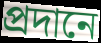
প্রদানে